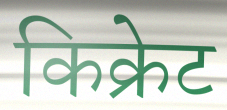
किक्रेट